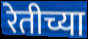
रेतीच्या